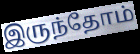
இருந்தோம்